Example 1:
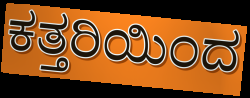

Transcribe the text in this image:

ಕತ್ತರಿಯಿಂದ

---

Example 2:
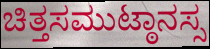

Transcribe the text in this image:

ಚಿತ್ತಸಮುಟ್ಠಾನಸ್ಸ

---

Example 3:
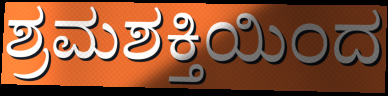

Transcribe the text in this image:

ಶ್ರಮಶಕ್ತಿಯಿಂದ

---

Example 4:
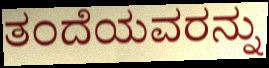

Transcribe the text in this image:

ತಂದೆಯವರನ್ನು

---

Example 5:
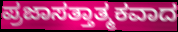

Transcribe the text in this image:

ಪ್ರಜಾಸತ್ತಾತ್ಮಕವಾದ